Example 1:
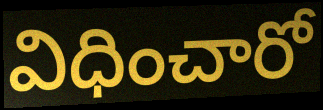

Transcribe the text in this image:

విధించారో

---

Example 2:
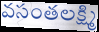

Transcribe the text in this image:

వసంతలక్ష్మి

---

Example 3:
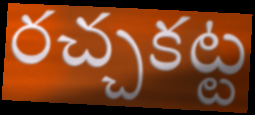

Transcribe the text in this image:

రచ్చకట్ట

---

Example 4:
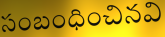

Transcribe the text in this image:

సంబంధించినవి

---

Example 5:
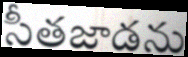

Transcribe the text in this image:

సీతజాడను